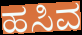
ಹಸಿವ